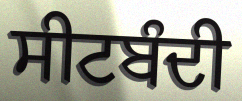
ਸੀਟਬੰਦੀ